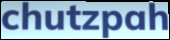
chutzpah